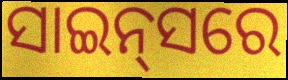
ସାଇନ୍‌ସରେ